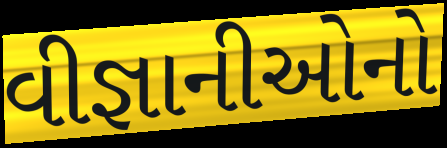
વીજ્ઞાનીઓનો